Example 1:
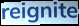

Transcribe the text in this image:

reignite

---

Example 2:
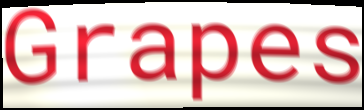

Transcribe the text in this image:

Grapes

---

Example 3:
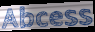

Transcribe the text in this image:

Abcess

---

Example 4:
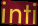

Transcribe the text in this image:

inti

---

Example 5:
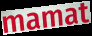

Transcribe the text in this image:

mamat